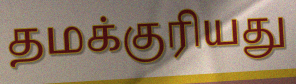
தமக்குரியது